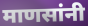
माणसांनी